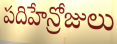
పదిహేన్రోజులు